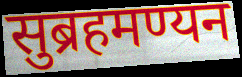
सुब्रहमण्यन